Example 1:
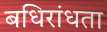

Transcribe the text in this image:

बधिरांधता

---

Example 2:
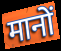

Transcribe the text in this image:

मानों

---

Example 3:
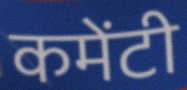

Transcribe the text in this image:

कमेंटी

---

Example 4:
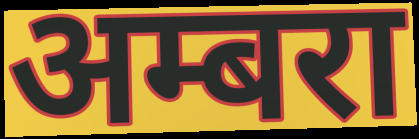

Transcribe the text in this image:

अम्बरा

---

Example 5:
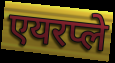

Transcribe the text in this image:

एयरप्ले